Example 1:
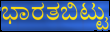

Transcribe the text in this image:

ಭಾರತಬಿಟ್ಟು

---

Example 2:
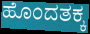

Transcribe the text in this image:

ಹೊಂದತಕ್ಕ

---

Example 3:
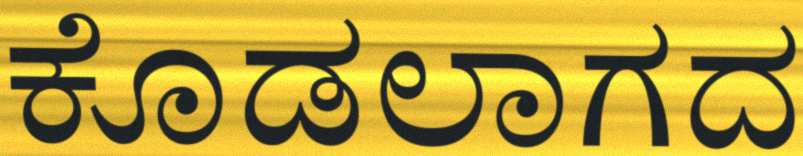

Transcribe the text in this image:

ಕೊಡಲಾಗದ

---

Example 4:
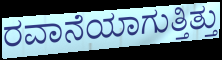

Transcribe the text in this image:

ರವಾನೆಯಾಗುತ್ತಿತ್ತು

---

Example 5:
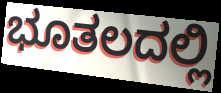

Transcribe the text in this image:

ಭೂತಲದಲ್ಲಿ